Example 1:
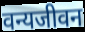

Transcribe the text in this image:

वन्यजीवन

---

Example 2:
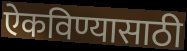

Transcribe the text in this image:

ऐकविण्यासाठी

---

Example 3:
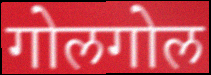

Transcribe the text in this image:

गोलगोल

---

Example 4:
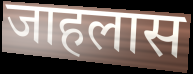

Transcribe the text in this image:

जाहलास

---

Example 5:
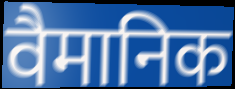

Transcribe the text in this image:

वैमानिक